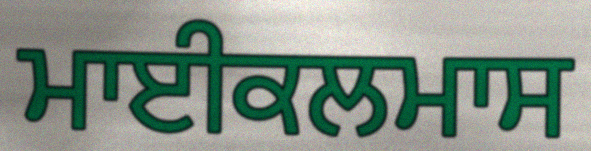
ਮਾਈਕਲਮਾਸ